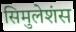
सिमुलेशंस